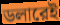
ডলারেই